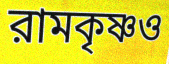
রামকৃষ্ণও